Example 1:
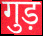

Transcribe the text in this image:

गुड़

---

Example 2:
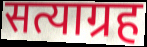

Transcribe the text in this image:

सत्याग्रह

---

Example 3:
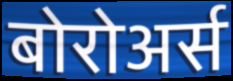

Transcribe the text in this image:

बोरोअर्स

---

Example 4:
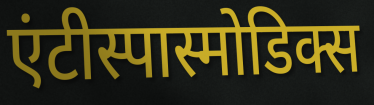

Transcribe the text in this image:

एंटीस्पास्मोडिक्स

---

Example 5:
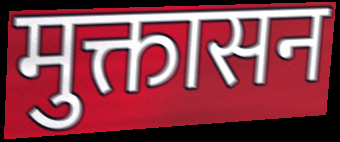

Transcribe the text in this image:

मुक्तासन